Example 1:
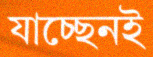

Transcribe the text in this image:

যাচ্ছেনই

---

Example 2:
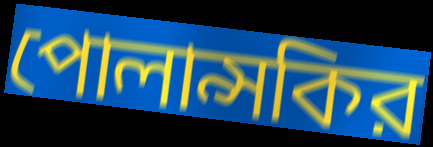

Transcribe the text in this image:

পোলান্সকির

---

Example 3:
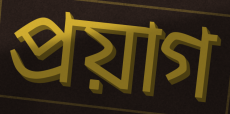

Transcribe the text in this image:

প্রয়াগ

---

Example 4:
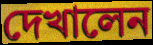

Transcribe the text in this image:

দেখালেন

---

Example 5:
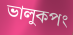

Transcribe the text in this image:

ভালুকপং